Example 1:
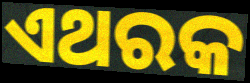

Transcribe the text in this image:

ଏଥରକ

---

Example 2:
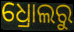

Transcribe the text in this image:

ଧ୍ରୋଲରୁ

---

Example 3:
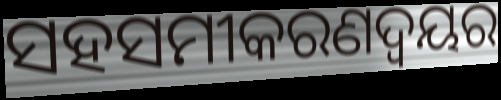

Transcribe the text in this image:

ସହସମୀକରଣଦ୍ୱୟର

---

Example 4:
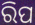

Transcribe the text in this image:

ରିପ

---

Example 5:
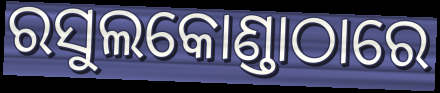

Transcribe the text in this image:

ରସୁଲକୋଣ୍ଡାଠାରେ